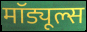
मॉड्यूल्स